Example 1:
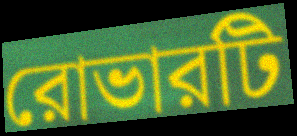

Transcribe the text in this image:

রোভারটি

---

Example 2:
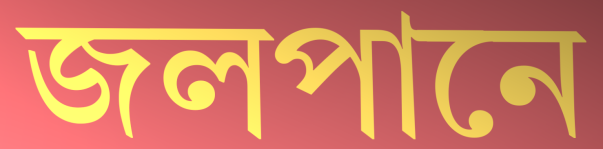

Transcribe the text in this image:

জলপানে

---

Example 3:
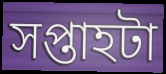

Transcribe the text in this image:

সপ্তাহটা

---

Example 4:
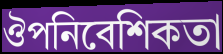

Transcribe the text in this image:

ঔপনিবেশিকতা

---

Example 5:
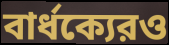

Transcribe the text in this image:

বার্ধক্যেরও